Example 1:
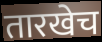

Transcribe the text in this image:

तारखेच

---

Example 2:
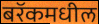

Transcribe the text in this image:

बरॅकमधील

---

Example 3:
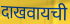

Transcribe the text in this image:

दाखवायची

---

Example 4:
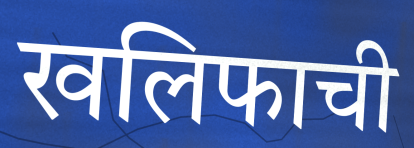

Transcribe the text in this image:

खलिफाची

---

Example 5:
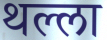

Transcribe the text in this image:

थल्ला